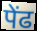
पेंढ